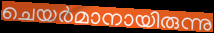
ചെയർമാനായിരുന്നു